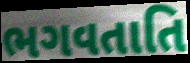
ભગવતાતિ